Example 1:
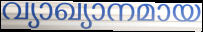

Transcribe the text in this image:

വ്യാഖ്യാനമായ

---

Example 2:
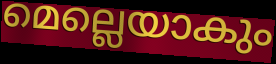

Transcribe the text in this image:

മെല്ലെയാകും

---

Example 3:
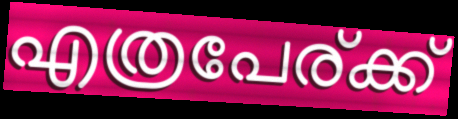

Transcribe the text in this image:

എത്രപേര്ക്ക്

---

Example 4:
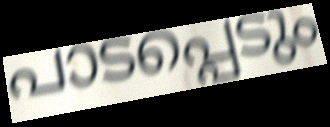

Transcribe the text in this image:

പാടപ്പെടും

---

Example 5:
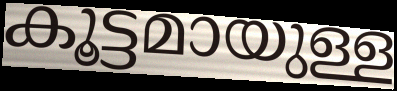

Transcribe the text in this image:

കൂട്ടമായുള്ള